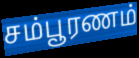
சம்பூரணம்